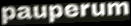
pauperum